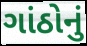
ગાંઠોનું